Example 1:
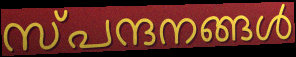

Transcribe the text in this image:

സ്പന്ദനങ്ങൾ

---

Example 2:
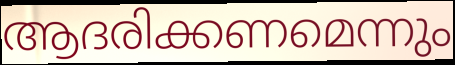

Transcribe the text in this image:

ആദരിക്കണമെന്നും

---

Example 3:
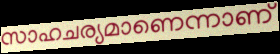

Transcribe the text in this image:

സാഹചര്യമാണെന്നാണ്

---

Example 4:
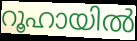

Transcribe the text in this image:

റൂഹായിൽ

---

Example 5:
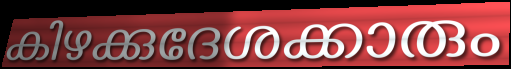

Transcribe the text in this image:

കിഴക്കുദേശക്കാരും